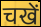
चखें